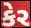
કેર